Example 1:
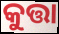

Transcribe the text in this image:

କୁତ୍ତା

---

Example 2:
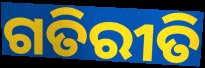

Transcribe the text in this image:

ଗତିରୀତି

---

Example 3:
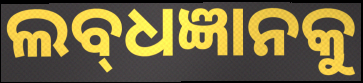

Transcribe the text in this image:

ଲବ୍‌ଧଜ୍ଞାନକୁ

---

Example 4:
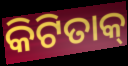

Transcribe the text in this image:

କିଟିତାକ୍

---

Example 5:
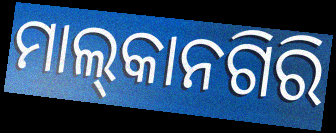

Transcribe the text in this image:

ମାଲ୍‌କାନଗିରି